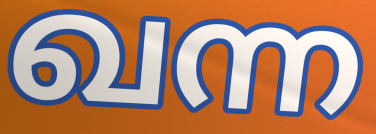
ഖന്ന